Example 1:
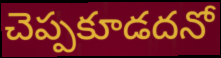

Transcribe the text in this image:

చెప్పకూడదనో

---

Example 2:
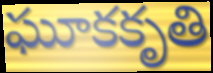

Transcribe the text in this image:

ఘూకకృతి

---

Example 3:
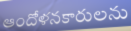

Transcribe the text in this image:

ఆందోళనకారులను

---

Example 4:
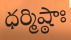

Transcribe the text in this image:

ధర్మిష్ఠాః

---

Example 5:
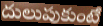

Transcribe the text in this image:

దులుపుకుంటే